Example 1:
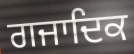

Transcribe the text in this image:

ਗਜਾਦਿਕ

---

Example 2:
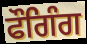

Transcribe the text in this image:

ਫੌਗਿੰਗ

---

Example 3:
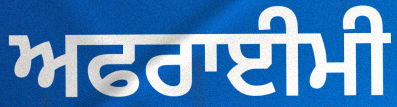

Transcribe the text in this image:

ਅਫਰਾਈਮੀ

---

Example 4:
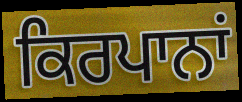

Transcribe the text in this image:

ਕਿਰਪਾਨਾਂ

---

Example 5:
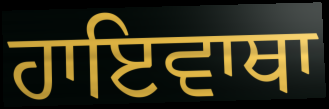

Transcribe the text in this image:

ਹਾਇਵਾਥਾ